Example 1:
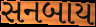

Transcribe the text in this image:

સનબાય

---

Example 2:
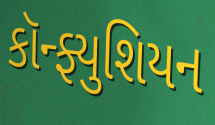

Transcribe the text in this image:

કૉન્ફ્યુશિયન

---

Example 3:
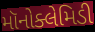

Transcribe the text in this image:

મૉનોક્લેમિડી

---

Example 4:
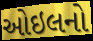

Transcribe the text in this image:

ઓઇલનો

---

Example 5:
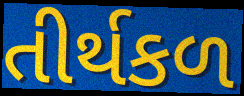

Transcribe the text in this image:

તીર્થકળ